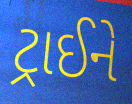
ટ્રાઈને